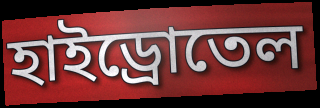
হাইড্রোতেল